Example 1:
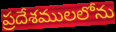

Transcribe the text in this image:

ప్రదేశములలోను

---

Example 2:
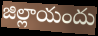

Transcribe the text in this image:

జిల్లాయందు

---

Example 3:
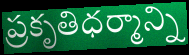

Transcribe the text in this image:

ప్రకృతిధర్మాన్ని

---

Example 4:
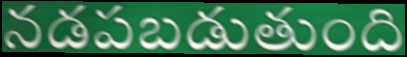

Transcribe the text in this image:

నడపబడుతుంది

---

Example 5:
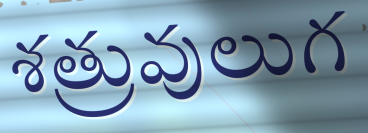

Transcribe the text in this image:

శత్రువులుగ